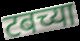
टबच्या